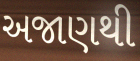
અજાણથી